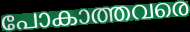
പോകാത്തവരെ